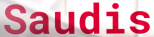
Saudis